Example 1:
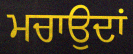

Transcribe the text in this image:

ਮਚਾਉਦਾਂ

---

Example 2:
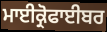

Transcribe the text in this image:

ਮਾਈਕ੍ਰੋਫਾਈਬਰ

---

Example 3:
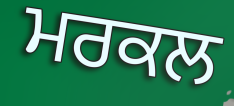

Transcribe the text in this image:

ਮਰਕਲ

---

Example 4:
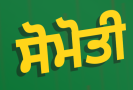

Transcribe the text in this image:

ਸੋਮੋਤੀ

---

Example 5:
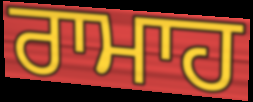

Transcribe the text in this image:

ਰਾਮਾਹ